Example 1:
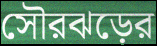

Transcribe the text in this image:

সৌরঝড়ের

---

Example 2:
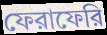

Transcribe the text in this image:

ফেরাফেরি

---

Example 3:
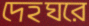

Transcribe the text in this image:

দেহঘরে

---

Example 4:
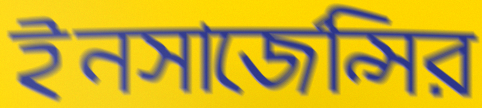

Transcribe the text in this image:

ইনসার্জেন্সির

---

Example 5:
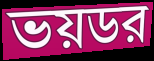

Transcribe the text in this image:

ভয়ডর